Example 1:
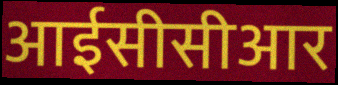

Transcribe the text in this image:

आईसीसीआर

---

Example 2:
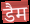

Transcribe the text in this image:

डैम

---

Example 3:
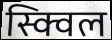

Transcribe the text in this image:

स्क्विल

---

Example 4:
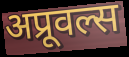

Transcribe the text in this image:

अप्रूवल्स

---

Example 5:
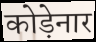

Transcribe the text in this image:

कोड़ेनार